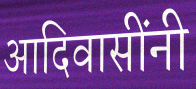
आदिवासींनी